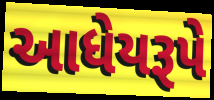
આધેયરૂપે